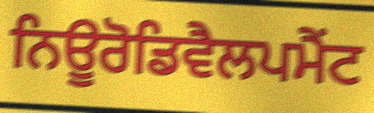
ਨਿਊਰੋਡਿਵੈਲਪਮੈਂਟ